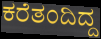
ಕರೆತಂದಿದ್ದ